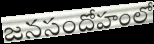
జనసందోహంలో